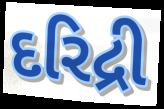
દરિદ્રી